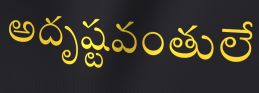
అదృష్టవంతులే